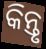
କିନ୍ତୃ